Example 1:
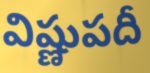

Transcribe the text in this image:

విష్ణుపదీ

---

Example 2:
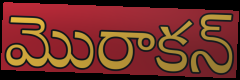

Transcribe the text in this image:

మొరాకన్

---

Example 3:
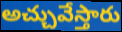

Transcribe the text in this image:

అచ్చువేస్తారు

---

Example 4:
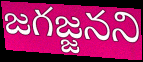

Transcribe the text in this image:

జగజ్జనని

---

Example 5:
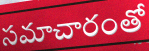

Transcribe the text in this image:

సమాచారంతో